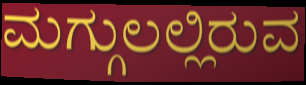
ಮಗ್ಗುಲಲ್ಲಿರುವ